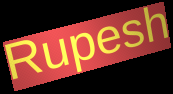
Rupesh